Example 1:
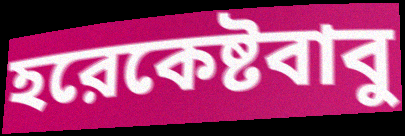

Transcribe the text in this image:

হরেকেষ্টবাবু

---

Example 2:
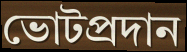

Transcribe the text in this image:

ভোটপ্রদান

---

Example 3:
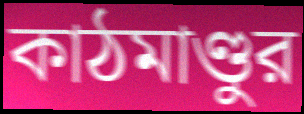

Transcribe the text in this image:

কাঠমাণ্ডুর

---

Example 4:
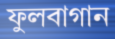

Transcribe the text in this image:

ফুলবাগান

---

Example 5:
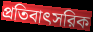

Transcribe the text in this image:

প্রতিবাৎসরিক